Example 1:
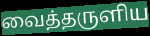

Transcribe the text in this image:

வைத்தருளிய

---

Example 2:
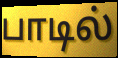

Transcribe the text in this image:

பாடில்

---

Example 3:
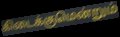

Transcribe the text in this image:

கிடைக்குமென்றும்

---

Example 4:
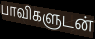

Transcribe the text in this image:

பாவிகளுடன்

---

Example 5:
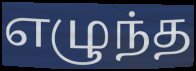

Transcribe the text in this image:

எழுந்த